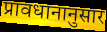
प्रावधानानुसार